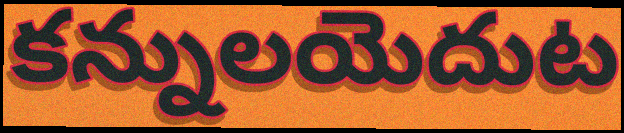
కన్నులయెదుట